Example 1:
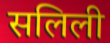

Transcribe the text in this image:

सलिली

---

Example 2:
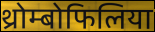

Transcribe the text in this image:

थ्रोम्बोफिलिया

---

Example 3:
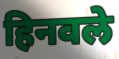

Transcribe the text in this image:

हिनवले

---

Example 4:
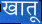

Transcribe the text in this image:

खातू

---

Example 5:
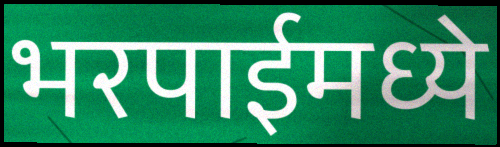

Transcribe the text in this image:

भरपाईमध्ये